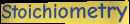
Stoichiometry